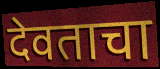
देवताचा